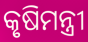
କୃଷିମନ୍ତ୍ରୀ